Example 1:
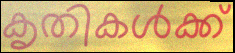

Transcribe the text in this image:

കൃതികൾക്ക്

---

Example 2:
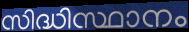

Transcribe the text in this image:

സിദ്ധിസ്ഥാനം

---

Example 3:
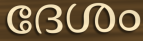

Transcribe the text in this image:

ദേശം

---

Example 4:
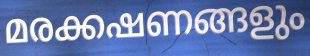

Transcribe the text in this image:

മരക്കഷണങ്ങളും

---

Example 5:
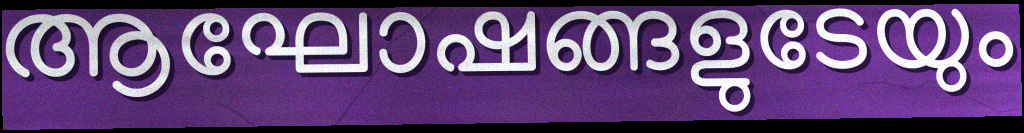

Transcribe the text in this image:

ആഘോഷങ്ങളുടേയും